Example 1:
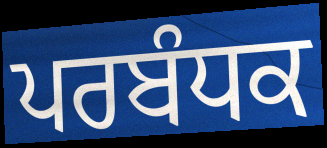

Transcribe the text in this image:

ਪਰਬੰਧਕ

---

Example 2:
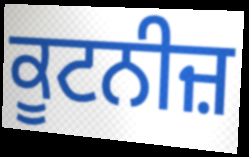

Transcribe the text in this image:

ਕੂਟਨੀਜ਼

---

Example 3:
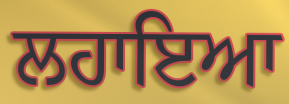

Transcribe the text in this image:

ਲਹਾਇਆ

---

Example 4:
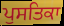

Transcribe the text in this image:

ਪੁਸਤਿਕਾ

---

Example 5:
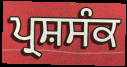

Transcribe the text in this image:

ਪ੍ਰਸ਼ਸੰਕ